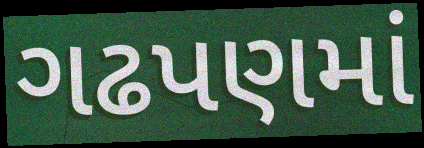
ગઢપણમાં